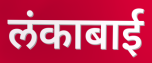
लंकाबाई